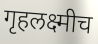
गृहलक्ष्मीच